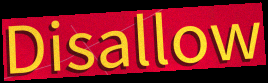
Disallow